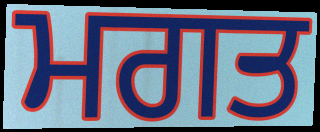
ਮਗਤ